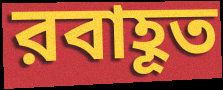
রবাহূত